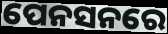
ପେନସନରେ